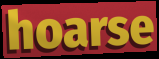
hoarse